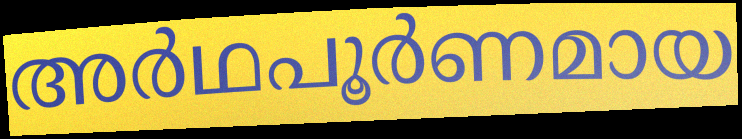
അർഥപൂർണമായ